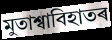
মুতাশ্বাবিহাতৰ